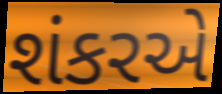
શંકરએ